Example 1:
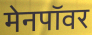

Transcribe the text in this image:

मेनपॉवर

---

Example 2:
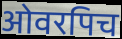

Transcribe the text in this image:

ओवरपिच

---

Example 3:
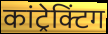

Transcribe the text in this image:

कांट्रेक्टिंग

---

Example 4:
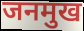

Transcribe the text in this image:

जनमुख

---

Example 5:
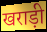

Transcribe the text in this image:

खराड़ी